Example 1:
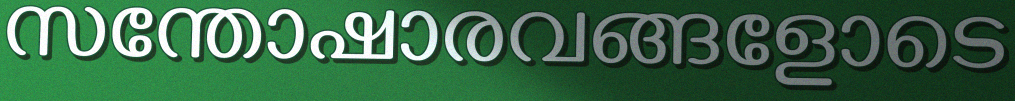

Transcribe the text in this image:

സന്തോഷാരവങ്ങളോടെ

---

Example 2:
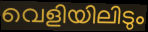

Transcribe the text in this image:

വെളിയിലിടും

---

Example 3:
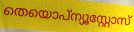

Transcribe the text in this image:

തെയൊപ്ന്യൂസ്റ്റോസ്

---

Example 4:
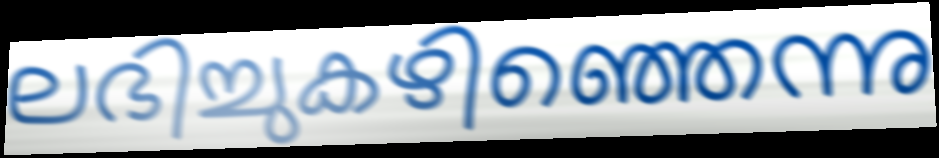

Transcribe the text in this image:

ലഭിച്ചുകഴിഞ്ഞെന്നു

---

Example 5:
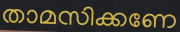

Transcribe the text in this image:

താമസിക്കണേ